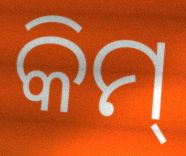
କିମ୍